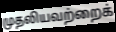
முதலியவற்றைக்